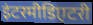
इंटरमीडिएटरी